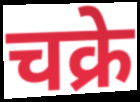
चक्रे